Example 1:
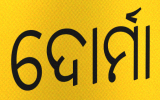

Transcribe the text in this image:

ଦୋର୍ମା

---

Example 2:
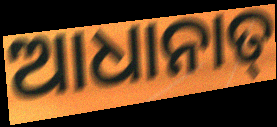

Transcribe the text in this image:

ଆଧାନାତ୍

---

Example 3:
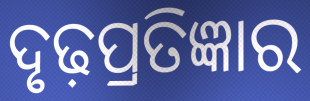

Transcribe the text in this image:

ଦୃଢ଼ପ୍ରତିଜ୍ଞାର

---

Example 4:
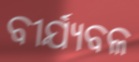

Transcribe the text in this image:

ବୀର୍ଯ୍ୟବଳ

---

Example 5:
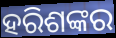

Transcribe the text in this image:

ହରିଶଙ୍କର